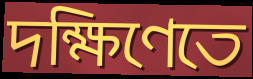
দক্ষিণেতে